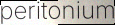
peritonium